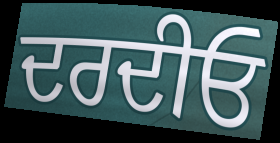
ਦਰਦੀਓ